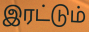
இரட்டும்